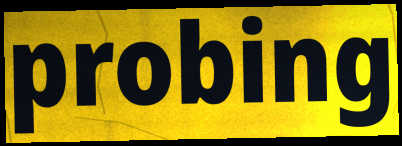
probing